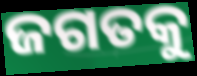
ଜଗତକୁ